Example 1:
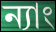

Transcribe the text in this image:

ন্যাং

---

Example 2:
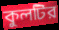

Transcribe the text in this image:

কুলটির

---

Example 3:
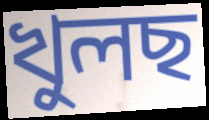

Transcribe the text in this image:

খুলছ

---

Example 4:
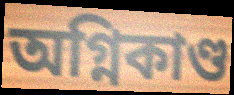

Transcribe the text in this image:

অগ্নিকাণ্ড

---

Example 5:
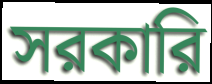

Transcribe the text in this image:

সরকারি